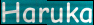
Haruka